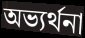
অভ্যৰ্থনা